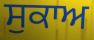
ਸੁਕਾਅ